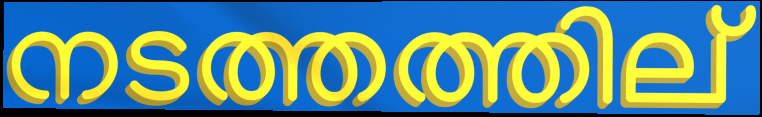
നടത്തത്തില്